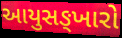
આયુસઙ્ખારો